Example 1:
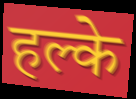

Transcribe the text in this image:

हल्के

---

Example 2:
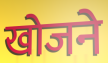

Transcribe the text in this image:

खोजने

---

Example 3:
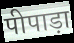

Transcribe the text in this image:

पीपाड़ा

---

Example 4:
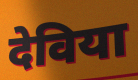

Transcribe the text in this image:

देविया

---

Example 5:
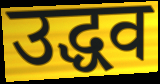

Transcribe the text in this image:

उद्धव